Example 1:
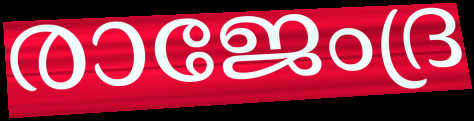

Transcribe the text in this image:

രാജേംദ്ര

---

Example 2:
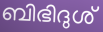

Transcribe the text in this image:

ബിഭിദുശ്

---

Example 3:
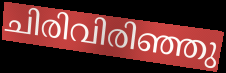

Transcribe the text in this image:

ചിരിവിരിഞ്ഞു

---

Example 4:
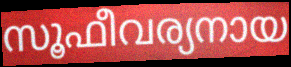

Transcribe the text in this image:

സൂഫീവര്യനായ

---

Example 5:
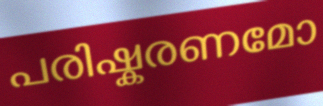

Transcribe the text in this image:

പരിഷ്കരണമോ